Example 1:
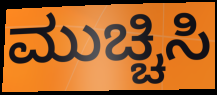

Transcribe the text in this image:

ಮುಚ್ಚಿಸಿ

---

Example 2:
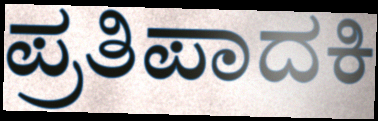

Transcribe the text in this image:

ಪ್ರತಿಪಾದಕಿ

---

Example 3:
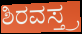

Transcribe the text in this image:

ಶಿರವಸ್ತ್ರ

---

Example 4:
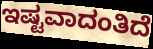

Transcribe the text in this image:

ಇಷ್ಟವಾದಂತಿದೆ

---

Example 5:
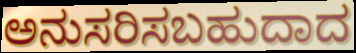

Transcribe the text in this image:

ಅನುಸರಿಸಬಹುದಾದ